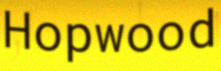
Hopwood